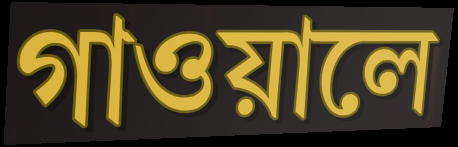
গাওয়ালে